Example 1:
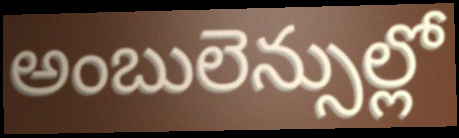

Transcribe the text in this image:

అంబులెన్సుల్లో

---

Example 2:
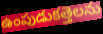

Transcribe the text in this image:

ఉంపుడుకత్తెలను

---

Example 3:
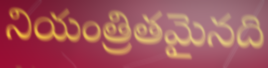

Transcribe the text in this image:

నియంత్రితమైనది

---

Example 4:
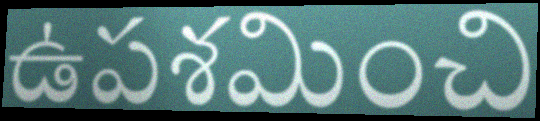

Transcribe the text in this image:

ఉపశమించి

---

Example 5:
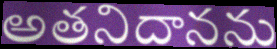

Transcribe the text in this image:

అతనిదానను